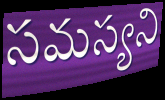
సమస్యని